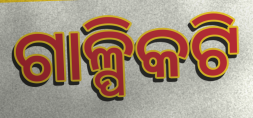
ଗାଳ୍ପିକଟି